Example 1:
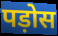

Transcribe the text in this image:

पड़ोस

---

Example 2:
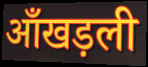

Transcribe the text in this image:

आँखड़ली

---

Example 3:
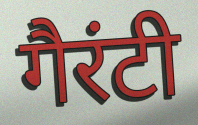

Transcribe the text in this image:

गैरंटी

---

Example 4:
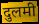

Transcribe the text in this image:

दुलमी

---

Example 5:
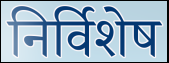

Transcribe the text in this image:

निर्विशेष